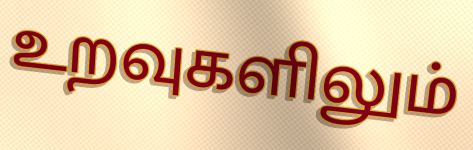
உறவுகளிலும்